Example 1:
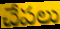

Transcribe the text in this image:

చేపలు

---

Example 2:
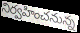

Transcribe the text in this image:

నిర్వహించనున్న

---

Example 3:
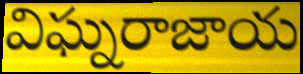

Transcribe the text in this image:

విఘ్నరాజాయ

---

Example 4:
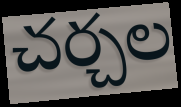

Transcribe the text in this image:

చర్చల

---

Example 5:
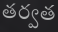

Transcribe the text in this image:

తర్వత